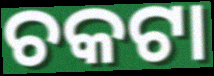
ଚକଟା